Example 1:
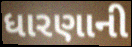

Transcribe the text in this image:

ધારણાની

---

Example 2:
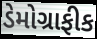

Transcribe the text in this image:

ડેમોગ્રાફીક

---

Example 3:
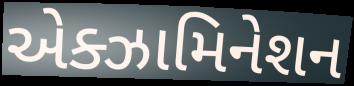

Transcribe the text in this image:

એક્ઝામિનેશન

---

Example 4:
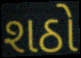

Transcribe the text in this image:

શઠો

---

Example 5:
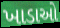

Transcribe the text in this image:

ખાડાઓ